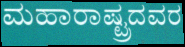
ಮಹಾರಾಷ್ಟ್ರದವರ